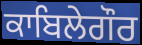
ਕਾਬਿਲੇਗੌਰ